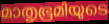
മാതൃഭൂമിയുടെ